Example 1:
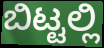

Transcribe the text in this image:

ಬಿಟ್ಟಲ್ಲಿ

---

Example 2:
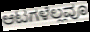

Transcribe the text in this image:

ಆಟಗಳೆಲ್ಲವೂ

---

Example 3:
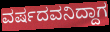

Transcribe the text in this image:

ವರ್ಷದವನಿದ್ದಾಗ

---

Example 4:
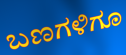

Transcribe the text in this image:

ಬಣಗಳಿಗೂ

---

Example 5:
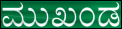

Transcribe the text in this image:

ಮುಖಂಡ